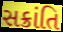
સક્રાંતિ